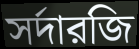
সর্দারজি